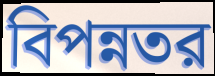
বিপন্নতর